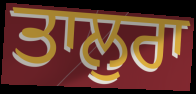
ਤਾਲੁਰਾ